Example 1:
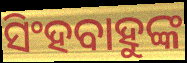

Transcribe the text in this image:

ସିଂହବାହୁଙ୍କ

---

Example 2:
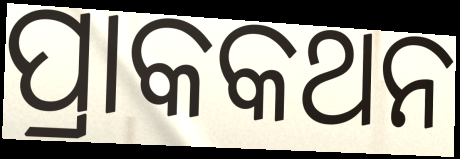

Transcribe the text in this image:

ପ୍ରାକକଥନ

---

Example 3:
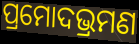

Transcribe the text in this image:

ପ୍ରମୋଦଭ୍ରମଣ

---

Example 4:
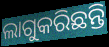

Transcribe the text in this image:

ଲାଗୁକରିଛନ୍ତି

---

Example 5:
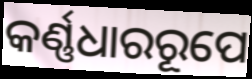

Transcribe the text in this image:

କର୍ଣ୍ଣଧାରରୂପେ